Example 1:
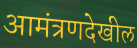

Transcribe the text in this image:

आमंत्रणदेखील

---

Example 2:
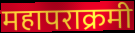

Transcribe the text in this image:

महापराक्रमी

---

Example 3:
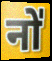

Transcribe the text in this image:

नो॑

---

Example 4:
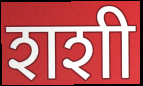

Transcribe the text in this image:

शशी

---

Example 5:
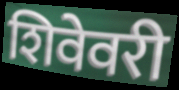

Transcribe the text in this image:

शिवेवरी